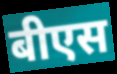
बीएस